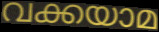
വക്കയാമ